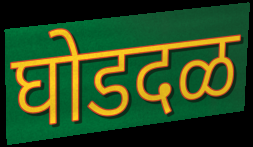
घोडदळ